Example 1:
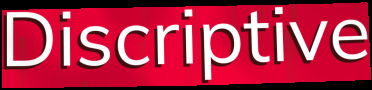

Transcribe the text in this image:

Discriptive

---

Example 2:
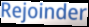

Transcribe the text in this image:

Rejoinder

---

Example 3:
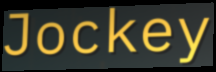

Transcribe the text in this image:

Jockey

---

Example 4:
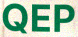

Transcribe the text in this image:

QEP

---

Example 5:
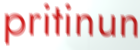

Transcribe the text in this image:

pritinun